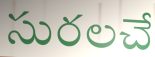
సురలచే